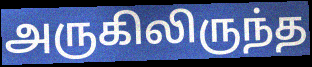
அருகிலிருந்த